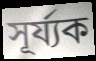
সূৰ্য্যক